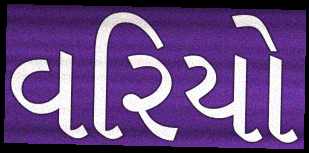
વરિયો